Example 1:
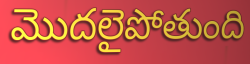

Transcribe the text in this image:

మొదలైపోతుంది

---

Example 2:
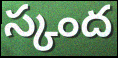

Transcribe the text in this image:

స్కంద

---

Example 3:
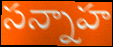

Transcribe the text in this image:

సన్నాహ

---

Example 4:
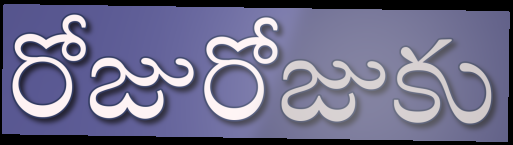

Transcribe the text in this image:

రోజురోజుకు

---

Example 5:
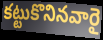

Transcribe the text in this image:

కట్టుకొనినవారై